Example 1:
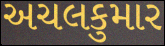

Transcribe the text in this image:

અચલકુમાર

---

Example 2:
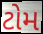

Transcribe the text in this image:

ટોમ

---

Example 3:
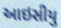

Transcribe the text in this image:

આઇસીયુ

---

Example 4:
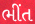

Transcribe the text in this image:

ભીંત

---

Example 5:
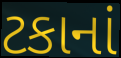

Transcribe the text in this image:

ટકાનાં